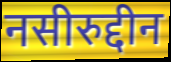
नसीरुद्दीन